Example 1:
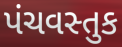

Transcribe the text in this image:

પંચવસ્તુક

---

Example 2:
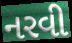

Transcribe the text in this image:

નરવી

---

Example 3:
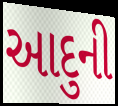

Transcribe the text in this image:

આદુની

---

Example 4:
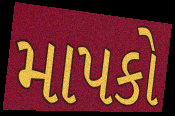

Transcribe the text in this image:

માપકો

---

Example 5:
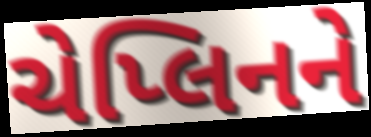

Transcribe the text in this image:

ચેપ્લિનને